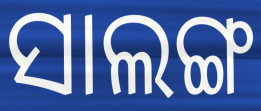
ସାଲଙ୍ଗ